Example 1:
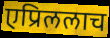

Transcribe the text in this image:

एप्रिललाच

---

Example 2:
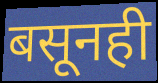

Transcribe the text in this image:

बसूनही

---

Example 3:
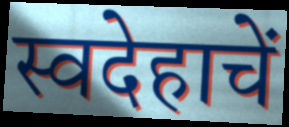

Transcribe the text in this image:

स्वदेहाचें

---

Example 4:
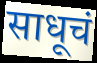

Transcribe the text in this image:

साधूचं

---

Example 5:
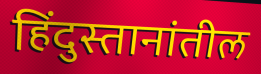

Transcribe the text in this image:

हिंदुस्तानांतील